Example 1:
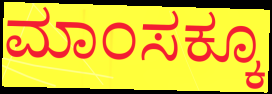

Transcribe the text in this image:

ಮಾಂಸಕ್ಕೂ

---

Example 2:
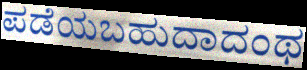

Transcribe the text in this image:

ಪಡೆಯಬಹುದಾದಂಥ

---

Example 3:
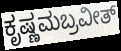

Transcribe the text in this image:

ಕೃಷ್ಣಮಬ್ರವೀತ್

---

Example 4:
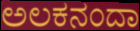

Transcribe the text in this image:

ಅಲಕನಂದಾ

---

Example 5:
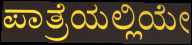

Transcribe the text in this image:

ಪಾತ್ರೆಯಲ್ಲಿಯೇ